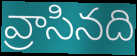
వ్రాసినది